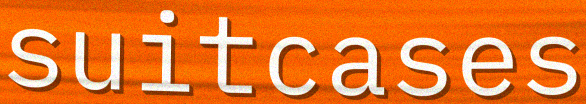
suitcases